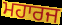
ਮਹਾਰਜ